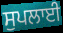
ਸੁਪਲਾਈ